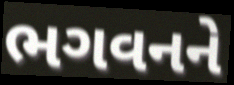
ભગવનને